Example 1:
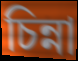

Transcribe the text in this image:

চিন্না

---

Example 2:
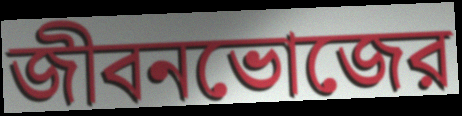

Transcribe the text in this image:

জীবনভোজের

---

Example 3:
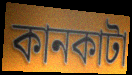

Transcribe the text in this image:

কানকাটা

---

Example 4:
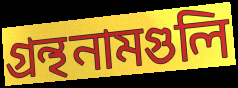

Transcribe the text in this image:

গ্রন্থনামগুলি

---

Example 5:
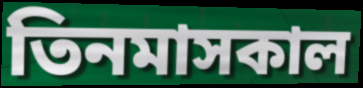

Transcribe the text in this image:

তিনমাসকাল